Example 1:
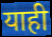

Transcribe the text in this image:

याही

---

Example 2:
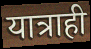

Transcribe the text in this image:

यात्राही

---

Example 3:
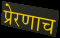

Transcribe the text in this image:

प्रेरणाच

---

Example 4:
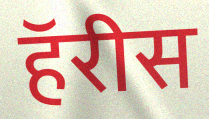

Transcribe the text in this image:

हॅरीस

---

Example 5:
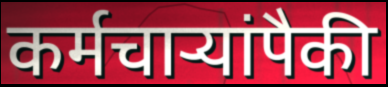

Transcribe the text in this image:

कर्मचार्‍यांपैकी